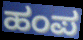
ಹಂಪ